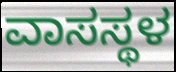
ವಾಸಸ್ಥಳ